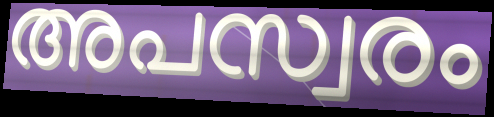
അപസ്വരം